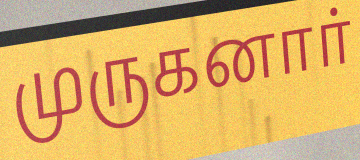
முருகனார்